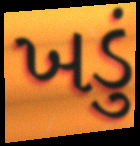
ખડું